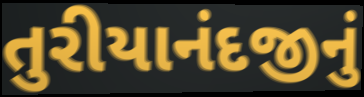
તુરીયાનંદજીનું